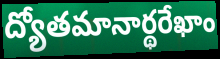
ద్యోతమానార్థరేఖాం